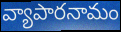
వ్యాపారనామం